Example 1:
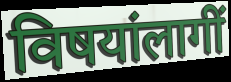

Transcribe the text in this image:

विषयांलागीं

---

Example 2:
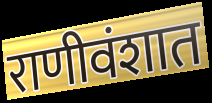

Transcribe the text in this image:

राणीवंशात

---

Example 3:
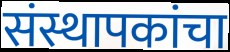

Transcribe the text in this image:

संस्थापकांचा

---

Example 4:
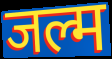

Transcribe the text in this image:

जल्म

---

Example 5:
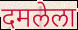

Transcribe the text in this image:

दमलेला